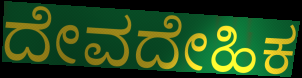
ದೇವದೇಹಿಕ